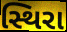
સ્થિરા